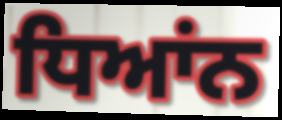
ਧਿਆਂਨ